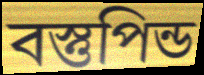
বস্তুপিন্ড